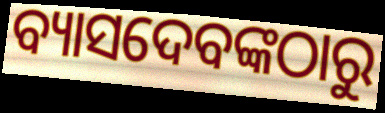
ବ୍ୟାସଦେବଙ୍କଠାରୁ